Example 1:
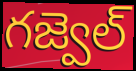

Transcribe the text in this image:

గజ్వెల్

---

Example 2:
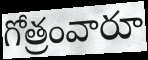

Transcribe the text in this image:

గోత్రంవారూ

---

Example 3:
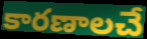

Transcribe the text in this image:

కారణాలచే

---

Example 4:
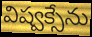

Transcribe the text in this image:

విష్వక్సేను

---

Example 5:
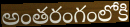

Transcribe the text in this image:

అంతరంగంలోకి